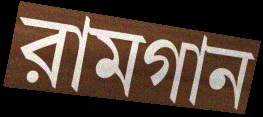
রামগান